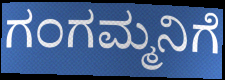
ಗಂಗಮ್ಮನಿಗೆ